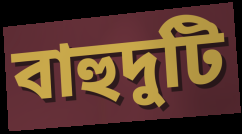
বাহুদুটি